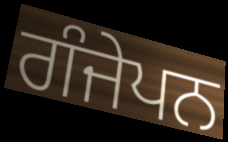
ਗੰਜੇਪਨ